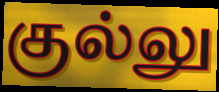
குல்லு